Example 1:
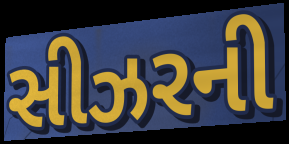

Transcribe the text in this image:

સીઝરની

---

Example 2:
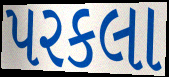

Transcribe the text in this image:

પરકલા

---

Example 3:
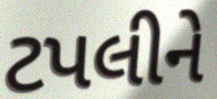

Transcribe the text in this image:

ટપલીને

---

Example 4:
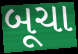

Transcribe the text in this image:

બૂચા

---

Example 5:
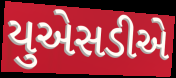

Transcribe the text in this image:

યુએસડીએ